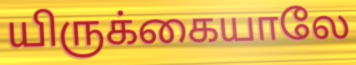
யிருக்கையாலே